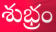
శుభ్రం